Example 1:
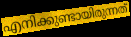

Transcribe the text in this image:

എനിക്കുണ്ടായിരുന്നത്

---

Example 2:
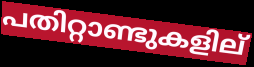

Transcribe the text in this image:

പതിറ്റാണ്ടുകളില്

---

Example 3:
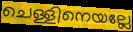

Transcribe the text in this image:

ചെള്ളിനെയല്ലേ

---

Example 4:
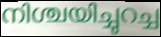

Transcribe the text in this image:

നിശ്ചയിച്ചുറച്ച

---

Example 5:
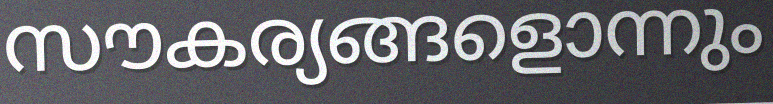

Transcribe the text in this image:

സൗകര്യങ്ങളൊന്നും